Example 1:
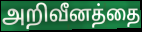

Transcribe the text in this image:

அறிவீனத்தை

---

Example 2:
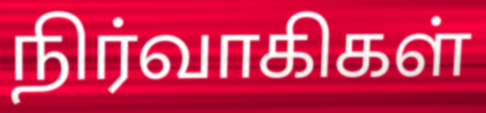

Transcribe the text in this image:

நிர்வாகிகள்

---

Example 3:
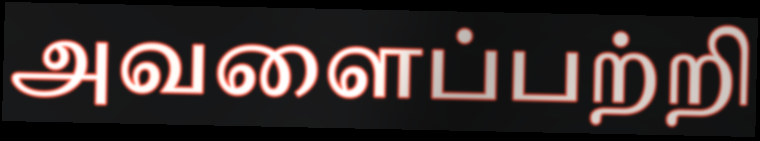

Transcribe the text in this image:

அவளைப்பற்றி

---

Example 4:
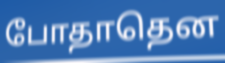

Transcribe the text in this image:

போதாதென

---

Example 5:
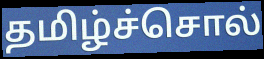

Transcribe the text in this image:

தமிழ்ச்சொல்